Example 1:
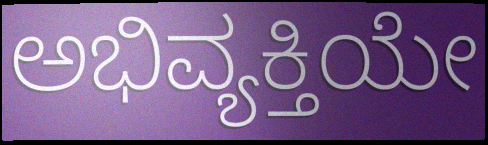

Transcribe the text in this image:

ಅಭಿವ್ಯಕ್ತಿಯೇ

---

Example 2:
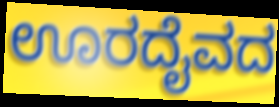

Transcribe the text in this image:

ಊರದೈವದ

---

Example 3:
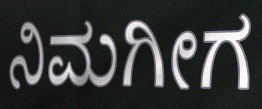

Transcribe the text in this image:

ನಿಮಗೀಗ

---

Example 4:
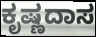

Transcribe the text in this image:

ಕೃಷ್ಣದಾಸ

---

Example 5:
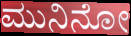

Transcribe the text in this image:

ಮುನಿನೋ